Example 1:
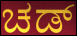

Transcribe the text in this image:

ಚಡ್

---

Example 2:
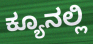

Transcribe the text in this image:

ಕ್ಯೂನಲ್ಲಿ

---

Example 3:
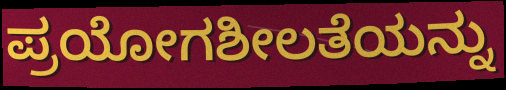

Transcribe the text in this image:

ಪ್ರಯೋಗಶೀಲತೆಯನ್ನು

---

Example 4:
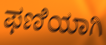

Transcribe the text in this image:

ಫಣಿಯಾಗಿ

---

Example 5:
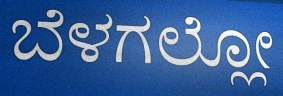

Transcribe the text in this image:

ಬೆಳಗಲ್ಲೋ